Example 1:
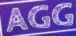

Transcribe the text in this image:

AGG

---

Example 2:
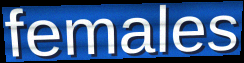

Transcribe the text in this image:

females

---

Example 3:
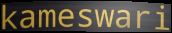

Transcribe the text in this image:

kameswari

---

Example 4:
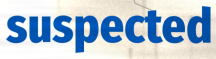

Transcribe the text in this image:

suspected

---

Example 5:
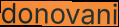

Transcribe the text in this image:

donovani